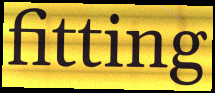
fitting